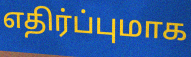
எதிர்ப்புமாக